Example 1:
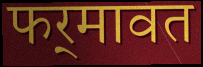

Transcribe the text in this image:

फर्मावत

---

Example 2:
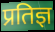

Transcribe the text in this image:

प्रतिज्ञ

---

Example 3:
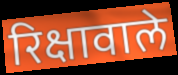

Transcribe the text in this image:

रिक्षावाले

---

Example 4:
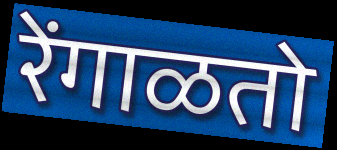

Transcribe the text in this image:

रेंगाळतो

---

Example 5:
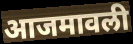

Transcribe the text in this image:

आजमावली